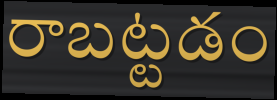
రాబట్టడం